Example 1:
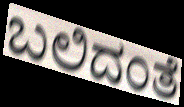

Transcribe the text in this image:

ಬಲಿದಂತೆ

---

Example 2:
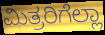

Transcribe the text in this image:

ಮಿತ್ರರಿಗೆಲ್ಲಾ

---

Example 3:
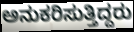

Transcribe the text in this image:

ಅನುಕರಿಸುತ್ತಿದ್ದರು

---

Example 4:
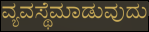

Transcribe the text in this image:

ವ್ಯವಸ್ಥೆಮಾಡುವುದು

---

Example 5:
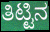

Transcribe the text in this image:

ತಿಟ್ಟಿನ